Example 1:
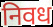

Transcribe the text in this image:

निवध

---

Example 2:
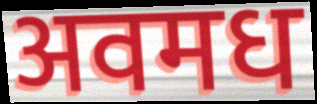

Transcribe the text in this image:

अवमध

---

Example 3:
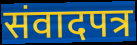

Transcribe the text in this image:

संवादपत्र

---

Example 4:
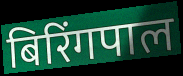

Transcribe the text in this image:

बिरिंगपाल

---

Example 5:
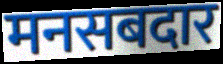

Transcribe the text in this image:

मनसबदार